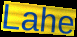
Lahe